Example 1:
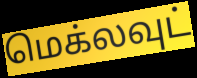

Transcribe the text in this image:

மெக்லவுட்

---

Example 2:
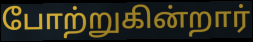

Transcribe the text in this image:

போற்றுகின்றார்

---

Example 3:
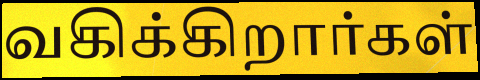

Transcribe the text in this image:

வகிக்கிறார்கள்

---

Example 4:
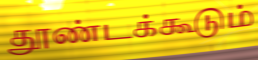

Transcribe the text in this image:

தூண்டக்கூடும்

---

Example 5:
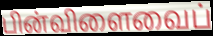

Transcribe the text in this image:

பின்விளைவைப்